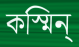
কস্মিন্